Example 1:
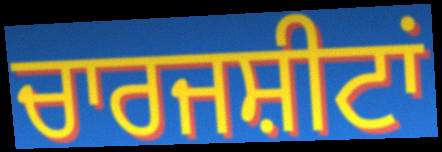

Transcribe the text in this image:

ਚਾਰਜਸ਼ੀਟਾਂ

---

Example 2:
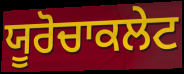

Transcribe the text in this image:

ਯੂਰੋਚਾਕਲੇਟ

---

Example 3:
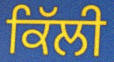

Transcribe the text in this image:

ਕਿੱਲੀ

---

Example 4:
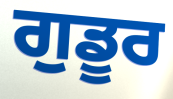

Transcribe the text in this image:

ਗੁਡੂਰ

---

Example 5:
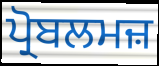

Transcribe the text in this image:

ਪ੍ਰੋਬਲਮਜ਼